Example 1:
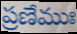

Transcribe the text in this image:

ప్రణేముః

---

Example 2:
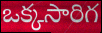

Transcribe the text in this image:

ఒక్కసారిగ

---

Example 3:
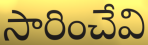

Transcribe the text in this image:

సారించేవి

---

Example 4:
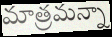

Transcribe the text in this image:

మాత్రమన్నా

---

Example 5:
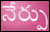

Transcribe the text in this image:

నేర్పు